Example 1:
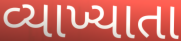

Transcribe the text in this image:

વ્યાખ્યાતા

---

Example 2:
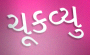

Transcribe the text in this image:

ચૂકવ્યુ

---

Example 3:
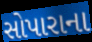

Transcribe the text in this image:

સોપારાના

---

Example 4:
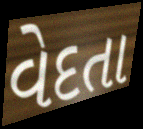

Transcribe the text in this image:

વેદતા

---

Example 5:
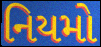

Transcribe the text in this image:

નિયમો